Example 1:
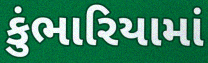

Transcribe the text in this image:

કુંભારિયામાં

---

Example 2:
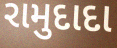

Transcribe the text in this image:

રામુદાદા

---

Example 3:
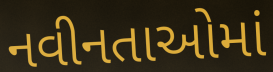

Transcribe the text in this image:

નવીનતાઓમાં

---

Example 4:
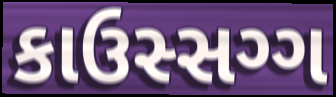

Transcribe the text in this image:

કાઉસ્સગ્ગ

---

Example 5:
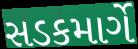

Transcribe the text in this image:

સડકમાર્ગે